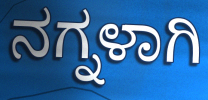
ನಗ್ನಳಾಗಿ